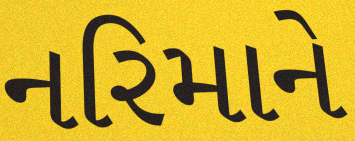
નરિમાને